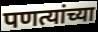
पणत्यांच्या